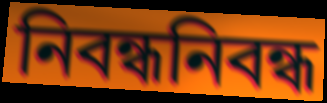
নিবন্ধনিবন্ধ